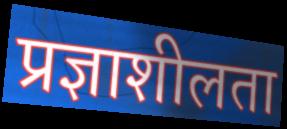
प्रज्ञाशीलता